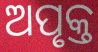
ଅପୃକ୍ତ